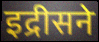
इद्रीसने